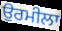
ਉਰਮੀਲਾ